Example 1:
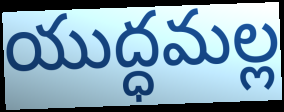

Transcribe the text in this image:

యుద్ధమల్ల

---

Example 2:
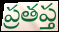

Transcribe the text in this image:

ప్రతప్త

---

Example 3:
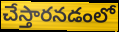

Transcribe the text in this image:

చేస్తారనడంలో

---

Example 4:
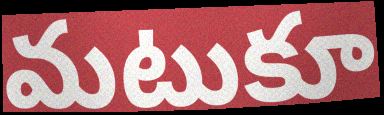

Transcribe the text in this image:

మటుకూ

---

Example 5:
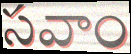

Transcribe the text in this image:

సవాం